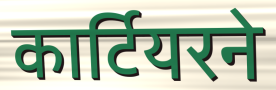
कार्टियरने